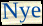
Nye